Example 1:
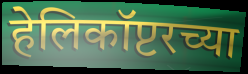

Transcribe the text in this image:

हेलिकॉप्टरच्या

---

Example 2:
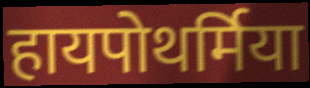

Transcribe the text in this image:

हायपोथर्मिया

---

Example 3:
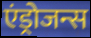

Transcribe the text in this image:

एंड्रोजन्स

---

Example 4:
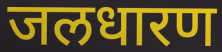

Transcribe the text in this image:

जलधारण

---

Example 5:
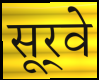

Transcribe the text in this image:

सूर्वे